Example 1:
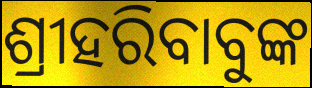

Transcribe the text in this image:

ଶ୍ରୀହରିବାବୁଙ୍କ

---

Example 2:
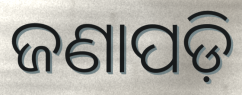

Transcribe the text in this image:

ଜଣାପଡ଼ି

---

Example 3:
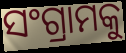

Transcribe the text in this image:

ସଂଗ୍ରାମକୁ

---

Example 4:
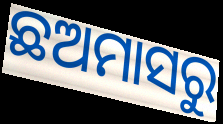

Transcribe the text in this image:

ଛଅମାସରୁ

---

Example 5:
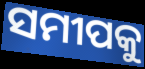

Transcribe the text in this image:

ସମୀପକୁ